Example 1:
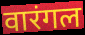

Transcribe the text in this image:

वारंगल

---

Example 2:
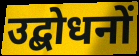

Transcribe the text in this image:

उद्बोधनों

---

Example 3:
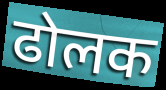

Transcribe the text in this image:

ढोलक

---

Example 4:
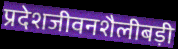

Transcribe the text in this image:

प्रदेशजीवनशैलीबड़ी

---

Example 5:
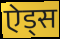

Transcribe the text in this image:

ऐड्स